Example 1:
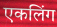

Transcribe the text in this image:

एकलिंग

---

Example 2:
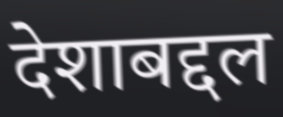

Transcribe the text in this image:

देशाबद्दल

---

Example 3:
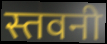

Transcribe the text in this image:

स्तवनी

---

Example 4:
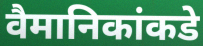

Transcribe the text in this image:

वैमानिकांकडे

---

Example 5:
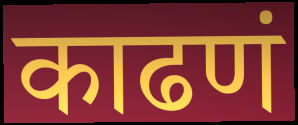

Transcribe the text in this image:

काढणं